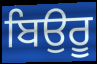
ਬਿਉਰੂ